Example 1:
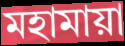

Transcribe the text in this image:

মহামায়া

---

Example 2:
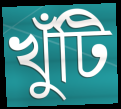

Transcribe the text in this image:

খুঁটি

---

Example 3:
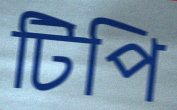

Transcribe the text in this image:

টিপি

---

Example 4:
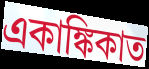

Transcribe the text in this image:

একাঙ্কিকাত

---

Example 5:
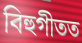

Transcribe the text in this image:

বিহুগীতত